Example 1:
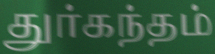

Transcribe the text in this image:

துர்கந்தம்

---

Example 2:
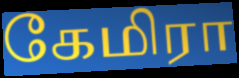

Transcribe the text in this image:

கேமிரா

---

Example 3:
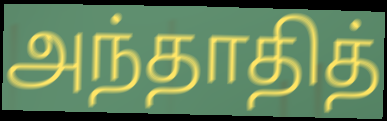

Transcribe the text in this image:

அந்தாதித்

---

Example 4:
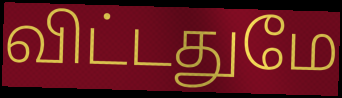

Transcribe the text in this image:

விட்டதுமே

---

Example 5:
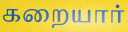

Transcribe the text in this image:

கறையார்